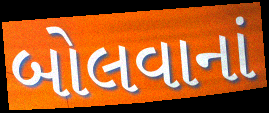
બોલવાનાં